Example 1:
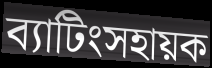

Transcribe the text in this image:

ব্যাটিংসহায়ক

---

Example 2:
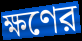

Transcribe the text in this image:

ক্ষণের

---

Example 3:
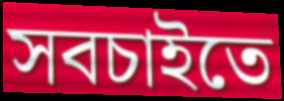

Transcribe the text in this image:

সবচাইতে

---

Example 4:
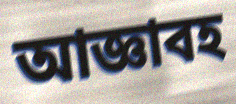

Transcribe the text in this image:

আজ্ঞাবহ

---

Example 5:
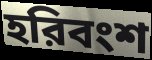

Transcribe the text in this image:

হরিবংশ